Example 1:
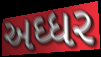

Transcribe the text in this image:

અઘ્ધર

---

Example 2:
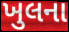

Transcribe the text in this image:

ખુલના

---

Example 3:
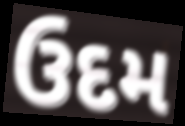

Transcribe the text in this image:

ઉદમ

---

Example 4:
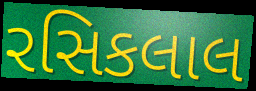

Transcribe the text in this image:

રસિકલાલ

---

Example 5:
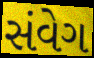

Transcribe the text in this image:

સંવેગ